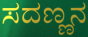
ಸದಣ್ಣನ